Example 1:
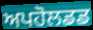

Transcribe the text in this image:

ਅਪਹੋਲਡਡ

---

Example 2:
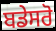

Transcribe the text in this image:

ਬਡੇਸਰੋ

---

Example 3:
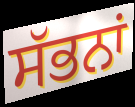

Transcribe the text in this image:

ਸੱਭਨਾਂ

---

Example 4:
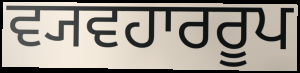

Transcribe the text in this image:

ਵ੍ਯਵਹਾਰਰੂਪ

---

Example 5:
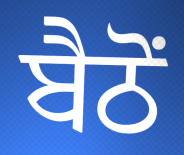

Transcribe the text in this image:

ਬੈਠੋਂ